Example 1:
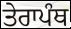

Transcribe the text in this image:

ਤੇਰਾਪੰਥ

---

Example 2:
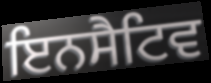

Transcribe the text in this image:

ਇਨਸੈਟਿਵ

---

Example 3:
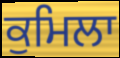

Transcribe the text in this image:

ਕੁਮਿਲਾ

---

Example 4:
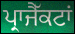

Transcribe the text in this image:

ਪ੍ਰਾਜੈੱਕਟਾਂ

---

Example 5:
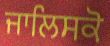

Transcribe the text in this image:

ਜਾਲਿਸਕੋ